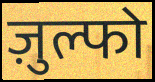
ज़ुल्फो